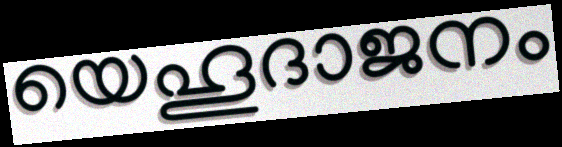
യെഹൂദാജനം